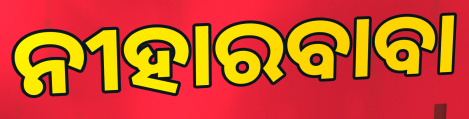
ନୀହାରବାବା